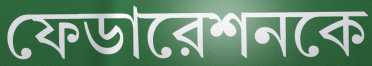
ফেডারেশনকে